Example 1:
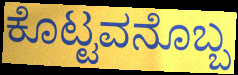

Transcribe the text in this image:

ಕೊಟ್ಟವನೊಬ್ಬ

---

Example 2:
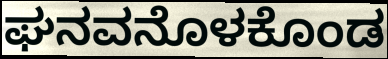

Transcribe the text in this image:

ಘನವನೊಳಕೊಂಡ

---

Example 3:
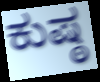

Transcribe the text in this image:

ಕುಷ್ಠ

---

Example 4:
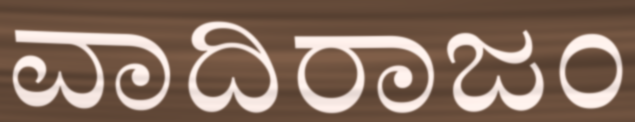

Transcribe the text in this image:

ವಾದಿರಾಜಂ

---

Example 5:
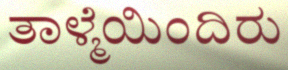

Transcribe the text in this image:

ತಾಳ್ಮೆಯಿಂದಿರು